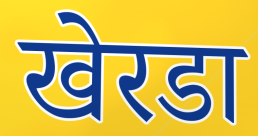
खेरडा